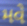
મવે